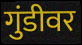
गुंडीवर